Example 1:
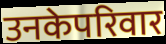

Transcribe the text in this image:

उनकेपरिवार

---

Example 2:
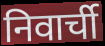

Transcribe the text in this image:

निवार्ची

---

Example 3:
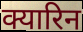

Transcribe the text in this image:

क्यारिन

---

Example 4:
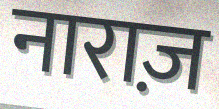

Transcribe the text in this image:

नाराज़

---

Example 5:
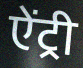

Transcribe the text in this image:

ऐंट्री